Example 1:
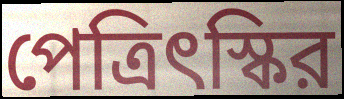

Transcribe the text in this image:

পেত্রিৎস্কির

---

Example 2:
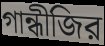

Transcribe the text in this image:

গান্ধীজির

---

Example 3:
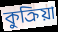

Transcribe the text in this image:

কুক্রিয়া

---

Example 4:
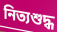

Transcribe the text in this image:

নিত্যশুদ্ধ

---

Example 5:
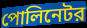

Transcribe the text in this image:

পোলিনেটর